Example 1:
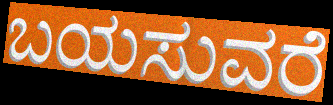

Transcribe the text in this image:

ಬಯಸುವರೆ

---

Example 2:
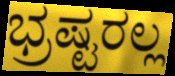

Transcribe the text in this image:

ಭ್ರಷ್ಟರಲ್ಲ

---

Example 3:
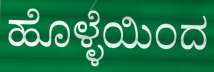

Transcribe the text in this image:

ಹೊಳ್ಳೆಯಿಂದ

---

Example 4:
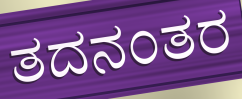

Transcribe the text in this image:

ತದನಂತರ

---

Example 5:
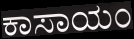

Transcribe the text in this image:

ಕಾಸಾಯಂ